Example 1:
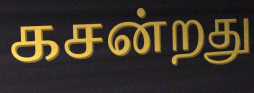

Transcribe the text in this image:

கசன்றது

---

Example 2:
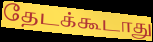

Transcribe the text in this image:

தேடக்கூடாது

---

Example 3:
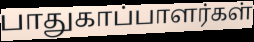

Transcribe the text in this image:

பாதுகாப்பாளர்கள்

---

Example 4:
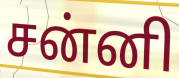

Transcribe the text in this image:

சன்னி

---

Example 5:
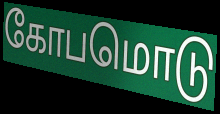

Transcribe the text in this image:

கோபமொடு